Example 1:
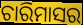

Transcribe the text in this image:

ଚାରିମାସର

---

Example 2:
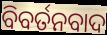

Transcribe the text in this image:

ବିବର୍ତନବାଦ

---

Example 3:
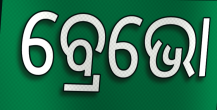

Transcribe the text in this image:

ବ୍ରେଭୋ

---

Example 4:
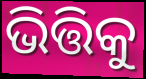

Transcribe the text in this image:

ଭିତ୍ତିକୁ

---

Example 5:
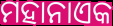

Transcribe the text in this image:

ମହାନାଏକ